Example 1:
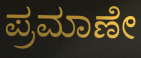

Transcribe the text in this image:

ಪ್ರಮಾಣೇ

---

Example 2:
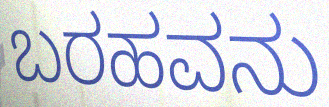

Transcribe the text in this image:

ಬರಹವನು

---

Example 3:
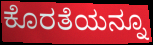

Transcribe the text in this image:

ಕೊರತೆಯನ್ನೂ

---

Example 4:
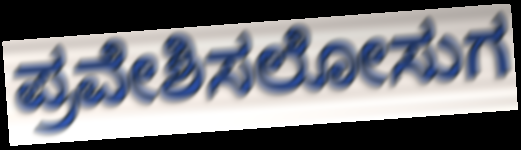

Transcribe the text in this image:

ಪ್ರವೇಶಿಸಲೋಸುಗ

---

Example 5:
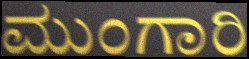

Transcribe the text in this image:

ಮುಂಗಾರಿ